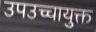
उपउच्चायुक्त